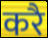
करै